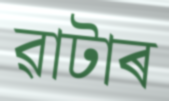
ৱাটাৰ